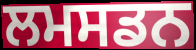
ਲਮਸਡਨ